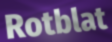
Rotblat